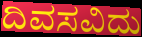
ದಿವಸವಿದು